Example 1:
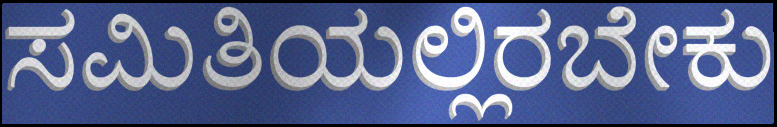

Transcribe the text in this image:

ಸಮಿತಿಯಲ್ಲಿರಬೇಕು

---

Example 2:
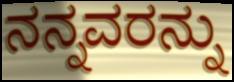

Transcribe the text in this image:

ನನ್ನವರನ್ನು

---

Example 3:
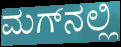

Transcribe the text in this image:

ಮಗ್‌ನಲ್ಲಿ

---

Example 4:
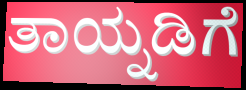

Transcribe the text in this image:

ತಾಯ್ನಡಿಗೆ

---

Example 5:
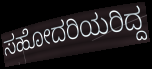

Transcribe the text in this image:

ಸಹೋದರಿಯರಿದ್ದ